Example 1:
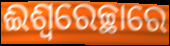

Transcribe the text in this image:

ଈଶ୍ୱରେଚ୍ଛାରେ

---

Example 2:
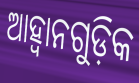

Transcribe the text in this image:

ଆହ୍ବାନଗୁଡ଼ିକ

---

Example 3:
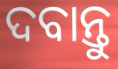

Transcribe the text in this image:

ଦବାନ୍ତୁ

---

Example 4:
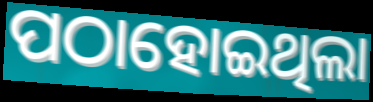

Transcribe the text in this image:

ପଠାହୋଇଥିଲା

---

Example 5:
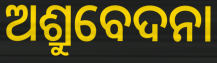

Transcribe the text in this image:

ଅଶ୍ରୁବେଦନା